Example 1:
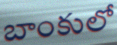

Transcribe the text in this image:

బాంకులో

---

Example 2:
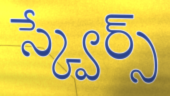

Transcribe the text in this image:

స్క్వేర్స్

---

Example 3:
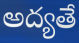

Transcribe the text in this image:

అద్యతే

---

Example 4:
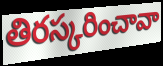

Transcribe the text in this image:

తిరస్కరించావా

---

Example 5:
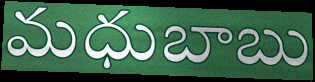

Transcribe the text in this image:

మధుబాబు